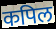
कपिल